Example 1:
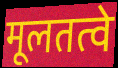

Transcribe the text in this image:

मूलतत्वे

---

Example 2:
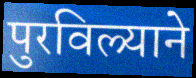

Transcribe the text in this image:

पुरविल्याने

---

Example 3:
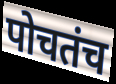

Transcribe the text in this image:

पोचतंच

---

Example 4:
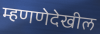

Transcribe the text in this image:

म्हणणेदेखील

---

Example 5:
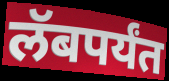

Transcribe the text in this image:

लॅबपर्यंत